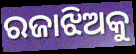
ରଜାଝିଅକୁ